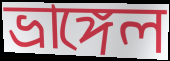
ভ্রাঙ্গেল